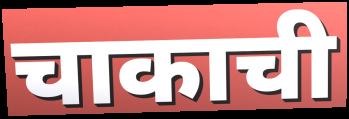
चाकाची